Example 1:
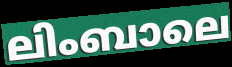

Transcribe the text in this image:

ലിംബാലെ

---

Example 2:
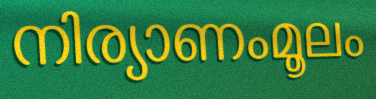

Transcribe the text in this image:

നിര്യാണംമൂലം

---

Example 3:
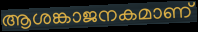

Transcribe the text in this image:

ആശങ്കാജനകമാണ്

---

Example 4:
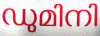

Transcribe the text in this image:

ഡുമിനി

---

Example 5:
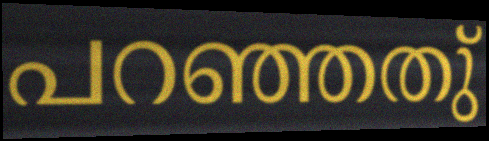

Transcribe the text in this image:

പറഞ്ഞതു്